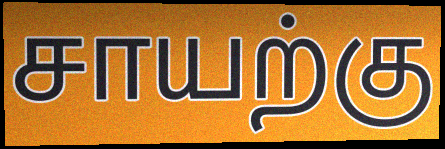
சாயற்கு